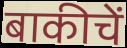
बाकीचें